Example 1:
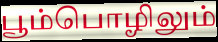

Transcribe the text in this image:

பூம்பொழிலும்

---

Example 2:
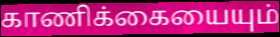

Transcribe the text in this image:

காணிக்கையையும்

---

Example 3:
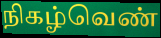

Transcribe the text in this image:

நிகழ்வெண்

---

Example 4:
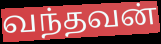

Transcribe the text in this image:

வந்தவன்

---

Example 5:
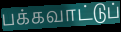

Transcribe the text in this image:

பக்கவாட்டுப்